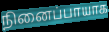
நினைப்பாயாக